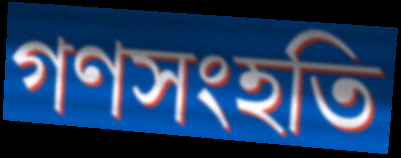
গণসংহতি